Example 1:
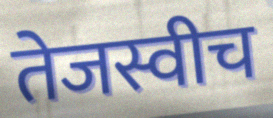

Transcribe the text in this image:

तेजस्वीच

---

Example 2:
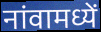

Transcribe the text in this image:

नांवामध्यें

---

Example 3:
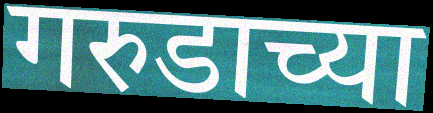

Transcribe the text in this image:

गरुडाच्या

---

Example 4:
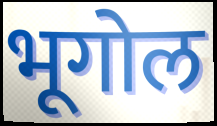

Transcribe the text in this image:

भूगोल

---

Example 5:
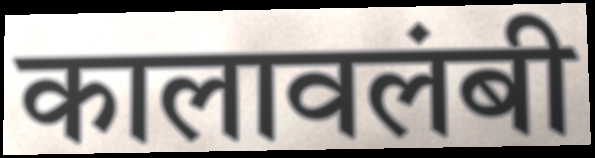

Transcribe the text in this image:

कालावलंबी